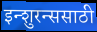
इन्शुरन्ससाठी